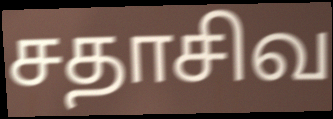
சதாசிவ